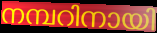
നമ്പറിനായി